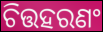
ଚିତ୍ତହରଣଂ